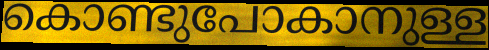
കൊണ്ടുപോകാനുള്ള